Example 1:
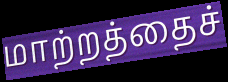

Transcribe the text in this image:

மாற்றத்தைச்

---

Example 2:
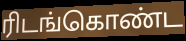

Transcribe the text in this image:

ரிடங்கொண்ட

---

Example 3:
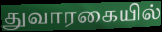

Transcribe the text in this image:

துவாரகையில்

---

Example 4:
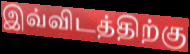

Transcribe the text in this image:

இவ்விடத்திற்கு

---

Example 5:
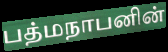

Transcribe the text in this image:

பத்மநாபனின்